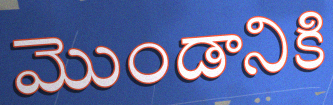
మొండానికి